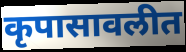
कृपासावलीत